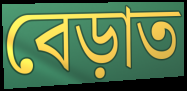
বেড়াত